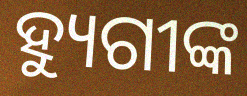
ହ୍ୟୁଗୀଙ୍କ